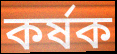
কর্ষক